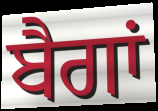
ਬੈਗਾਂ